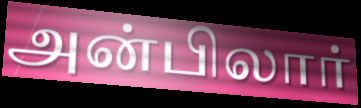
அன்பிலார்